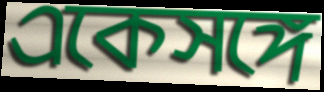
একেসঙ্গে